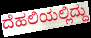
ದೆಹಲಿಯಲ್ಲಿದ್ದು